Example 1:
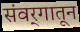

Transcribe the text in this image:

संवर्गातून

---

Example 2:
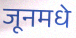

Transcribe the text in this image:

जूनमधे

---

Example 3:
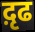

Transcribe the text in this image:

द़ृढ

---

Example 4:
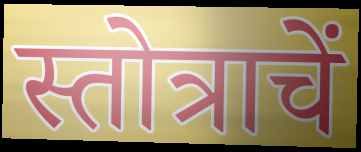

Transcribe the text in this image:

स्तोत्राचें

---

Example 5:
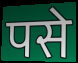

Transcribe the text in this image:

पसे